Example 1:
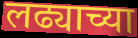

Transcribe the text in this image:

लढ्याच्या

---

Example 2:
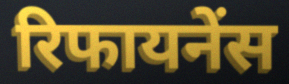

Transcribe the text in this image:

रिफायनेंस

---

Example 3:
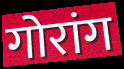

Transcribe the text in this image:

गोरांग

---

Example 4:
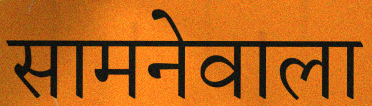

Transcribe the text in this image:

सामनेवाला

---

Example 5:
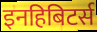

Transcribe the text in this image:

इनहिबिटर्स